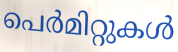
പെർമിറ്റുകൾ